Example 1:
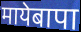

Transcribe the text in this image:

मायेबापा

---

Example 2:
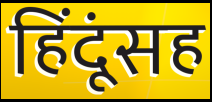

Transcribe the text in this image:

हिंदूंसह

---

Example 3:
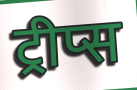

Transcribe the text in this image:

ट्रीप्स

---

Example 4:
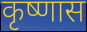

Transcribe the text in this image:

कृष्णास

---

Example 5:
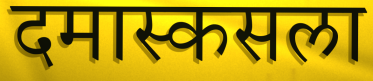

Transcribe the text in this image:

दमास्कसला